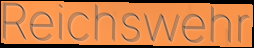
Reichswehr